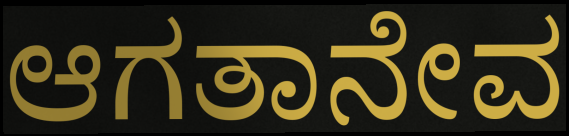
ಆಗತಾನೇವ